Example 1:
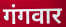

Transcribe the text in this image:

गंगवार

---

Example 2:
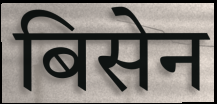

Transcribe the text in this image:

बिसेन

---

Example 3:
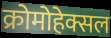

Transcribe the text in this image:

क्रोमोहेक्सल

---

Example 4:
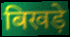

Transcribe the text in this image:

बिखड़े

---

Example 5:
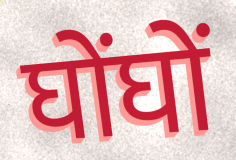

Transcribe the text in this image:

घोंघों